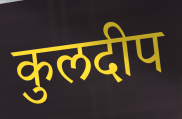
कुलदीप